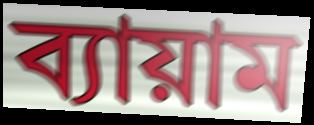
ব্যায়াম